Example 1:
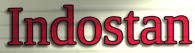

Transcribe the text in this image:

Indostan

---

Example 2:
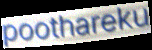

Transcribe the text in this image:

poothareku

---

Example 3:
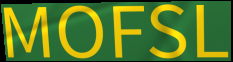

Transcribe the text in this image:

MOFSL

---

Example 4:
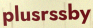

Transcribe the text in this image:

plusrssby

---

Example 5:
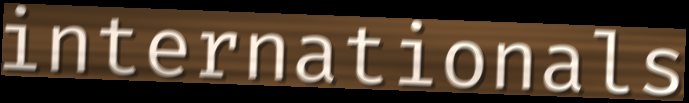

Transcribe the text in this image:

internationals